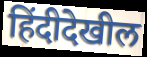
हिंदीदेखील